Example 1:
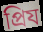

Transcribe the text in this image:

প্রিয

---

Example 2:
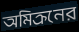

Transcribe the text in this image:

অমিক্রনের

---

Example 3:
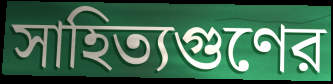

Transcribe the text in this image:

সাহিত্যগুণের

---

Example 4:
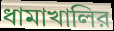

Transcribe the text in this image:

ধামাখালির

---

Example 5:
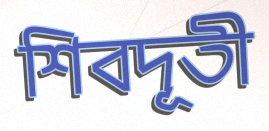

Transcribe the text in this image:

শিবদূতী